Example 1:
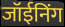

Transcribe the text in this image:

जॉईनिंग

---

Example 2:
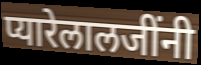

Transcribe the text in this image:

प्यारेलालजींनी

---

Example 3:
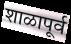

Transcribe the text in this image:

शाळापूर्व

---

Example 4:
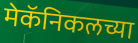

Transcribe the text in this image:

मेकॅनिकलच्या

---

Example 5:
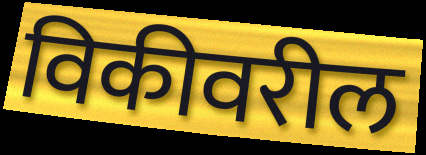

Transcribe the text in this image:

विकीवरील